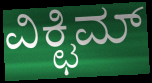
ವಿಕ್ಟಿಮ್